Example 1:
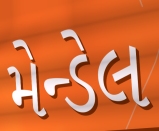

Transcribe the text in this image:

મેન્ડેલ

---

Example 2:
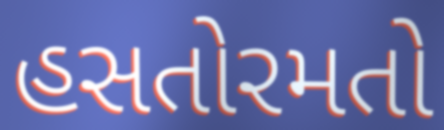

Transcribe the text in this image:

હસતોરમતો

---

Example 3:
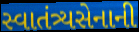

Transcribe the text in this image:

સ્વાતંત્ર્યસેનાની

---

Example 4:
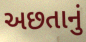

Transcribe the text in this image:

અછતાનું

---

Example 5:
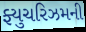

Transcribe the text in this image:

ફ્યુચરિઝમની